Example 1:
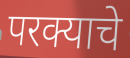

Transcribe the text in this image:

परक्याचे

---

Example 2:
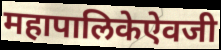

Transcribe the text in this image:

महापालिकेऐवजी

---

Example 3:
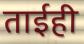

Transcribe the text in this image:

ताईही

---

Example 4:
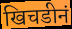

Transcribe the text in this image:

खिचडीनं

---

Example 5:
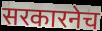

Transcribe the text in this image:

सरकारनेच